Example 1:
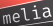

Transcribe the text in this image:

melia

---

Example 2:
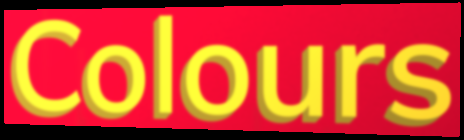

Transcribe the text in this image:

Colours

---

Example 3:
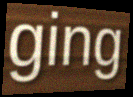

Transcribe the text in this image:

ging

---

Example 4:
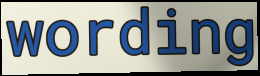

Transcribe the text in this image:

wording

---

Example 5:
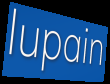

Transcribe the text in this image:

lupain